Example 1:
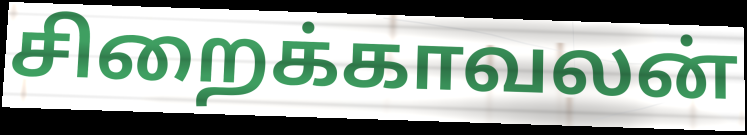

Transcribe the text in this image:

சிறைக்காவலன்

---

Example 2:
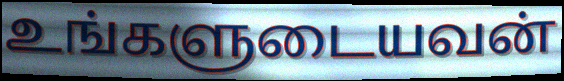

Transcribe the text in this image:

உங்களுடையவன்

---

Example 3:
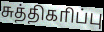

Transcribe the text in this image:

சுத்திகரிப்பு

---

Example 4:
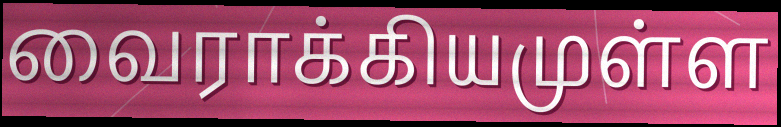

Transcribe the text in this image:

வைராக்கியமுள்ள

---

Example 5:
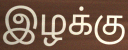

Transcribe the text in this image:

இழக்கு